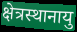
क्षेत्रस्थानायु